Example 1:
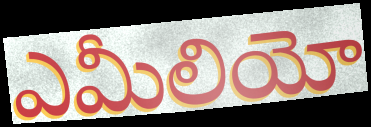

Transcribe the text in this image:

ఎమీలియో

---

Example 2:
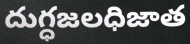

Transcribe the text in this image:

దుగ్ధజలధిజాత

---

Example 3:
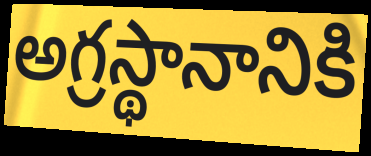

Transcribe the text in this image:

అగ్రస్థానానికి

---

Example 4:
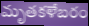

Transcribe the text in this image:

మృతకళేబరం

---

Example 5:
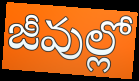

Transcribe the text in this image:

జీవుల్లో